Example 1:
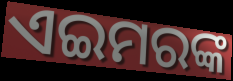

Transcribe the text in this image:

ଏଇମରଙ୍କ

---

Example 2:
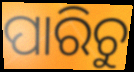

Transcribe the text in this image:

ପାରିଚୁ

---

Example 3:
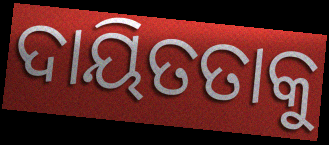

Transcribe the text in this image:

ଦାୟିତତାକୁ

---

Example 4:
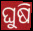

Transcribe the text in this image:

ଘୁଷି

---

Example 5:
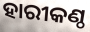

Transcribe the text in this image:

ହାରୀକଣ୍ଠ